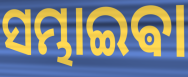
ସମ୍ଭାଇଵା